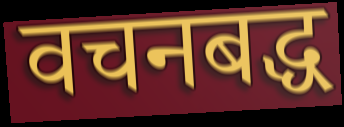
वचनबद्ध